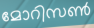
മോറിസൺ